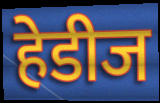
हेडीज